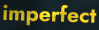
imperfect